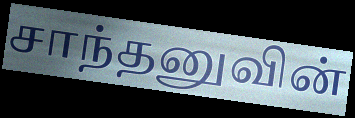
சாந்தனுவின்